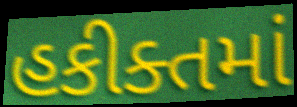
હકીક્તમાં